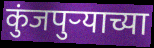
कुंजपुऱ्याच्या